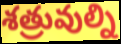
శత్రువుల్ని